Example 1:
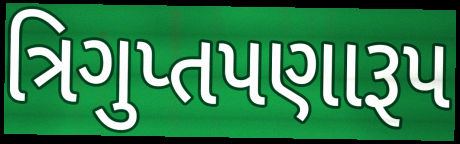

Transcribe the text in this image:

ત્રિગુપ્તપણારૂપ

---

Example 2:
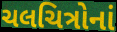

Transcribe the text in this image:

ચલચિત્રોનાં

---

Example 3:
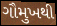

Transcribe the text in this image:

ગૌમુખથી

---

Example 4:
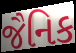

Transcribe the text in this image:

જૈનિક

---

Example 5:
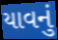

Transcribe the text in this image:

યાવનું